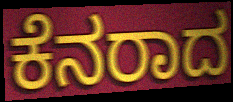
ಕೆನರಾದ